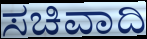
ಸಚಿವಾದಿ